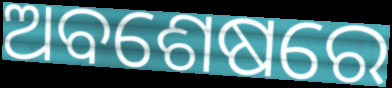
ଅବଶେଷରେ